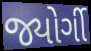
જ્યોર્ગી